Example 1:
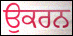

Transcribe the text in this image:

ਉਕਰਨ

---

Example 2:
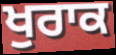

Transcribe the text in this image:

ਖੁਰਾਕ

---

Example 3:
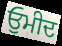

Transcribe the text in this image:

ਓੁਮੀਦ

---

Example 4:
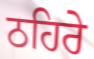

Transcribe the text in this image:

ਠਹਿਰੇ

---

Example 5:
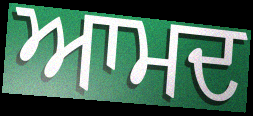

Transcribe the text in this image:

ਆਮਦ